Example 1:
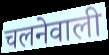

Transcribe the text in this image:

चलनेवाली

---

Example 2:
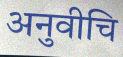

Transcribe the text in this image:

अनुवीचि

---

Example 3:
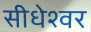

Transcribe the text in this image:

सीधेश्वर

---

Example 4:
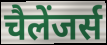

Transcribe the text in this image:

चैलेंजर्स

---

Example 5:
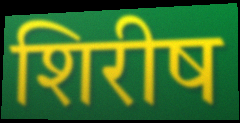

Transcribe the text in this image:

शिरीष